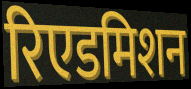
रिएडमिशन